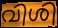
വിശി